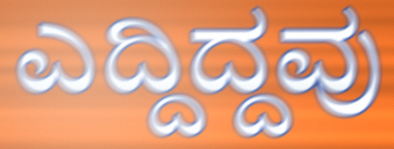
ಎದ್ದಿದ್ದವು